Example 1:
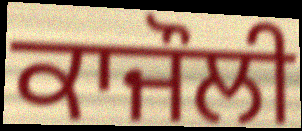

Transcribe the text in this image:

ਕਾਜੌਲੀ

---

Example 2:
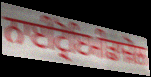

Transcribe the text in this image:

ਨਾਈਟ੍ਰੋਇਮੀਡਾਜ਼ੋਲ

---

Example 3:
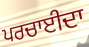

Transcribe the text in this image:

ਪਰਚਾਈਦਾ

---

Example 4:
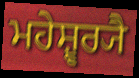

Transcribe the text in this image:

ਮਹੇਸ਼੍ਵਰ੍ਯੈ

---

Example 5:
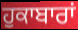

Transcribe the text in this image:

ਹੁਕਾਬਾਰਾਂ